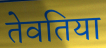
तेवतिया